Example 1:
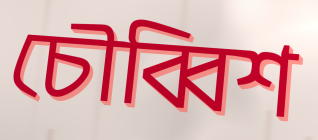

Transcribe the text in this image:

চৌব্বিশ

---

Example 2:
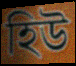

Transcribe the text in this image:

হিউ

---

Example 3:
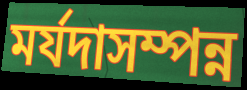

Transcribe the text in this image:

মৰ্যদাসম্পন্ন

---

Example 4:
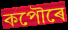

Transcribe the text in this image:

কপৌৰে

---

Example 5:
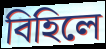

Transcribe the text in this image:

বিহিলে